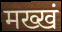
मख्खं